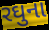
રઘુના